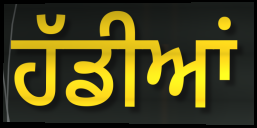
ਹੱਡੀਆਂ